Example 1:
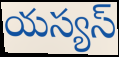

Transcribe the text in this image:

యస్యస్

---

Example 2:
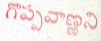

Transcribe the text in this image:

గొప్పవాణ్ణని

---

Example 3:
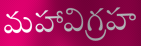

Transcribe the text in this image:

మహావిగ్రహ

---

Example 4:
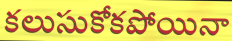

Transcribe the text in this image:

కలుసుకోకపోయినా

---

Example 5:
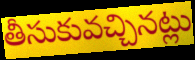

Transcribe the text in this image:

తీసుకువచ్చినట్లు